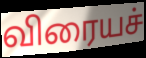
விரையச்